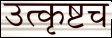
उत्कृष्टच